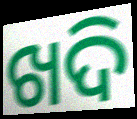
ଖଦି